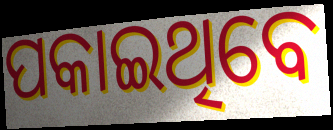
ପକାଇଥିବେ